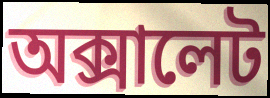
অক্সালেট